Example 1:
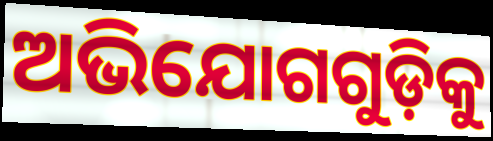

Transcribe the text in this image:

ଅଭିଯୋଗଗୁଡ଼ିକୁ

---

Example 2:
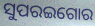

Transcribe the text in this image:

ସୁପରଇଗୋର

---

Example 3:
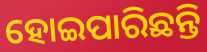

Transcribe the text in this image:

ହୋଇପାରିଛନ୍ତି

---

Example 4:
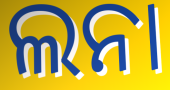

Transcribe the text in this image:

ଲନା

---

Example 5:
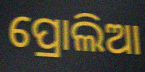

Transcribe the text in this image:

ପ୍ରୋଲିଆ